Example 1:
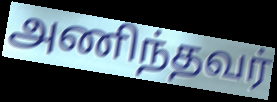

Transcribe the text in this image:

அணிந்தவர்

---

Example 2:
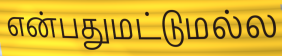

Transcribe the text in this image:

என்பதுமட்டுமல்ல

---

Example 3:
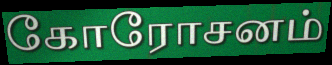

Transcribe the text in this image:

கோரோசனம்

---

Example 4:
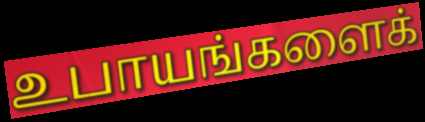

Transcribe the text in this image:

உபாயங்களைக்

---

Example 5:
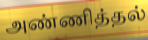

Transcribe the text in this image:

அண்ணித்தல்